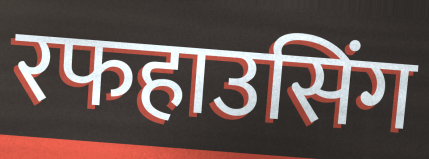
रफहाउसिंग